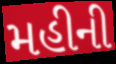
મહીની